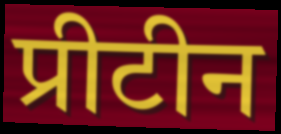
प्रीटीन